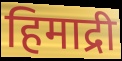
हिमाद्री